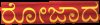
ರೋಜಾದ